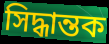
সিদ্ধান্তক